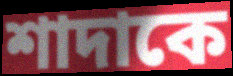
শাদাকে